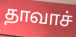
தாவாச்